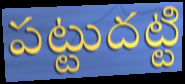
పట్టుదట్టి